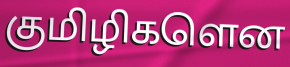
குமிழிகளென